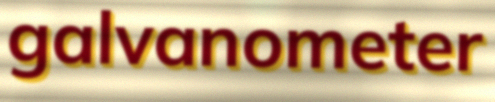
galvanometer